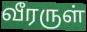
வீரருள்